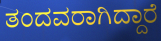
ತಂದವರಾಗಿದ್ದಾರೆ